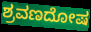
ಶ್ರವಣದೋಷ